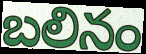
బలినం